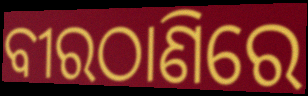
ବୀରଠାଣିରେ